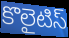
కొలైటిస్